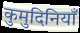
कुमुदिनियाँ